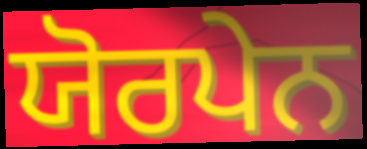
ਯੋਰਪੇਨ